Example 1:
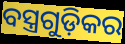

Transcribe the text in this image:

ବସ୍ତ୍ରଗୁଡ଼ିକର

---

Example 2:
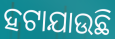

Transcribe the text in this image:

ହଟାଯାଉଛି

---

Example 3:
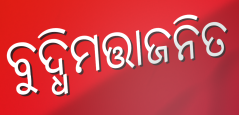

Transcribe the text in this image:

ବୁଦ୍ଧିମତ୍ତାଜନିତ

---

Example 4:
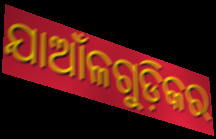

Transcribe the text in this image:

ଯାଆଁଳଗୁଡ଼ିକର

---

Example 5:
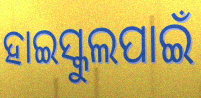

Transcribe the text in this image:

ହାଇସ୍କୁଲପାଇଁ